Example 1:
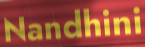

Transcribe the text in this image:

Nandhini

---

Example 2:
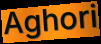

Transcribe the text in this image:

Aghori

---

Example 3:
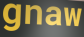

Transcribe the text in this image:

gnaw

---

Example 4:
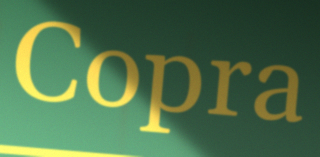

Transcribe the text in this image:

Copra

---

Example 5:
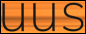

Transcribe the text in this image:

uus